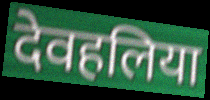
देवहलिया